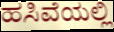
ಹಸಿವೆಯಲ್ಲಿ